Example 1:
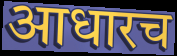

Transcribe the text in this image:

आधारच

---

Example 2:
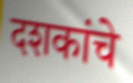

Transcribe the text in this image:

दशकांचे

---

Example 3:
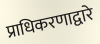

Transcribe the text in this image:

प्राधिकरणाद्वारे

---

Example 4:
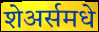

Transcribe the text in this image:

शेअर्समधे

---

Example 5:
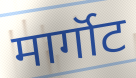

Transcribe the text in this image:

मार्गॉट